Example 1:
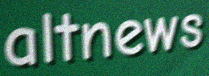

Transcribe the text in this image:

altnews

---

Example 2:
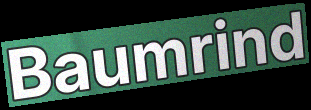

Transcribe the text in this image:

Baumrind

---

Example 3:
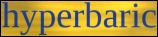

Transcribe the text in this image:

hyperbaric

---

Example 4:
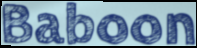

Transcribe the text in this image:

Baboon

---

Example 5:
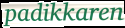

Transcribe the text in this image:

padikkaren